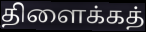
திளைக்கத்